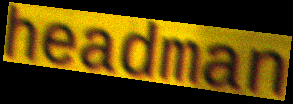
headman